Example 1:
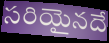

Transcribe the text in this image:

సరియైనదే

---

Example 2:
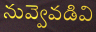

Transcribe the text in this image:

నువ్వెవడివి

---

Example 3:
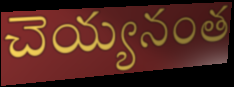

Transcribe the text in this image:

చెయ్యనంత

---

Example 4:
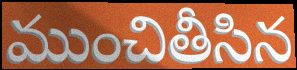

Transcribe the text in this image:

ముంచితీసిన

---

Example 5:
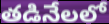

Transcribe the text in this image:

తడినేలలో